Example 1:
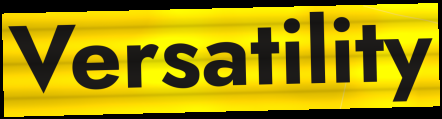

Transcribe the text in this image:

Versatility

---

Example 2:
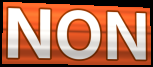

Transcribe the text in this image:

NON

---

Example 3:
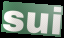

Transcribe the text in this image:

sui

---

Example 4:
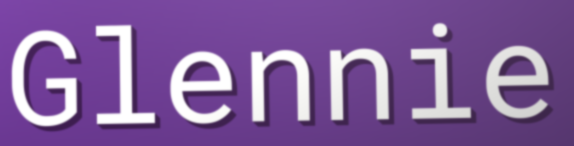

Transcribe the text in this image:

Glennie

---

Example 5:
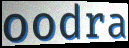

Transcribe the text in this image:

oodra